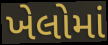
ખેલોમાં